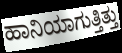
ಹಾನಿಯಾಗುತ್ತಿತ್ತು